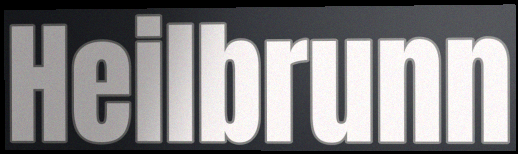
Heilbrunn